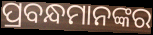
ପ୍ରବନ୍ଧମାନଙ୍କର